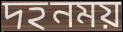
দহনময়